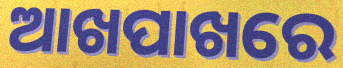
ଆଖପାଖରେ